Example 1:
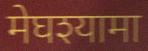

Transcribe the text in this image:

मेघश्यामा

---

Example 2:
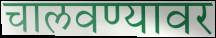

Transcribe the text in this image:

चालवण्यावर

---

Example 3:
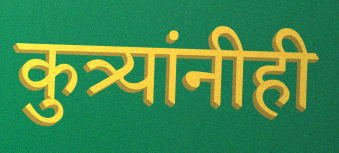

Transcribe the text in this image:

कुत्र्यांनीही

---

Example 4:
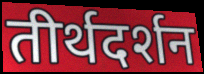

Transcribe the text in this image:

तीर्थदर्शन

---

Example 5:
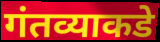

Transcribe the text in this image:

गंतव्याकडे